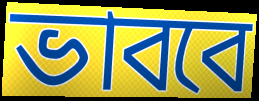
ভাববে